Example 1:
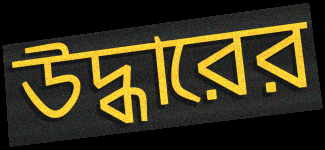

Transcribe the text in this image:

উদ্ধারের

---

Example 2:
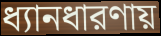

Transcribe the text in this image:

ধ্যানধারণায়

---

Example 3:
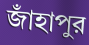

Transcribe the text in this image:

জাঁহাপুর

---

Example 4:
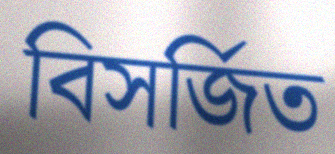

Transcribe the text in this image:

বিসর্জিত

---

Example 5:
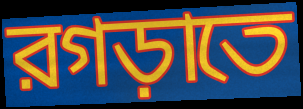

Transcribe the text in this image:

রগড়াতে